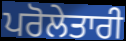
ਪਰੋਲੇਤਾਰੀ